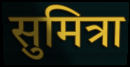
सुमित्रा